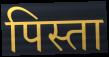
पिस्ता